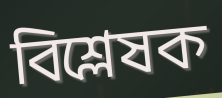
বিশ্লেষক